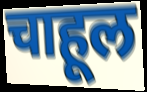
चाहूल